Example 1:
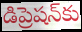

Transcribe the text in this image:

డిప్రెషన్‌కు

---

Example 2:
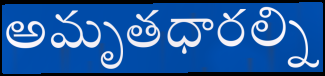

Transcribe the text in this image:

అమృతధారల్ని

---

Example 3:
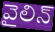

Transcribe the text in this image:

వైలిన్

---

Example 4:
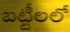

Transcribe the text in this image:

బట్టీలలో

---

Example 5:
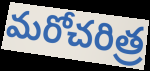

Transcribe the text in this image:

మరోచరిత్ర